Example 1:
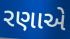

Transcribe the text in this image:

રણાએ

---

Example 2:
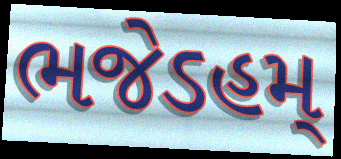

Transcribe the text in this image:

ભજેઽહમ્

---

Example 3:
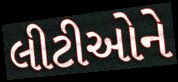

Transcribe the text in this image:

લીટીઓને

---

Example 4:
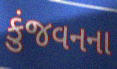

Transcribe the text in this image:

કુંજવનના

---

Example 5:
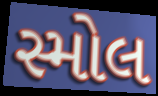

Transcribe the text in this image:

સ્મોલ